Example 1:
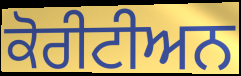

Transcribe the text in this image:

ਕੋਰੀਟੀਅਨ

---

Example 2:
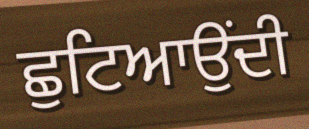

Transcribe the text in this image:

ਛੁਟਿਆਉਂਦੀ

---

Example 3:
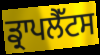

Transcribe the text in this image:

ਡ੍ਰਾਪਲੈੱਟਸ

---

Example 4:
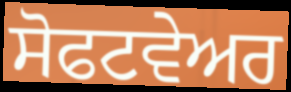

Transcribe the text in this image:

ਸੋਫਟਵੇਅਰ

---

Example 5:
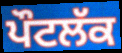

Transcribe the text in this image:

ਪੌਟਲੱਕ